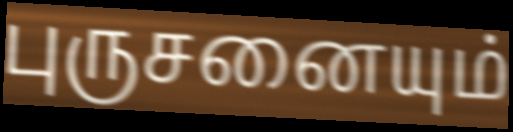
புருசனையும்